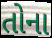
તોના